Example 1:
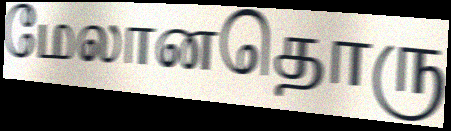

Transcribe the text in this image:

மேலானதொரு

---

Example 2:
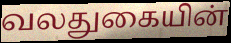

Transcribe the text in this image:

வலதுகையின்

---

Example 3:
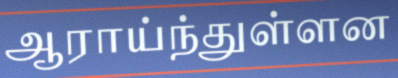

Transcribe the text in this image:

ஆராய்ந்துள்ளன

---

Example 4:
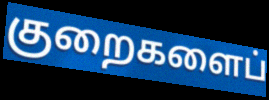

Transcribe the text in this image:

குறைகளைப்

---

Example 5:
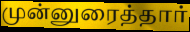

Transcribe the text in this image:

முன்னுரைத்தார்